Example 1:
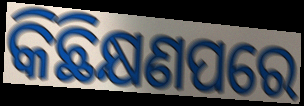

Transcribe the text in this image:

କିଛିକ୍ଷଣପରେ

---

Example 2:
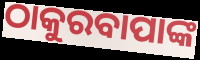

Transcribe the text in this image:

ଠାକୁରବାପାଙ୍କ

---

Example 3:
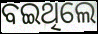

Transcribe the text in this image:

ବଇଥିଲେ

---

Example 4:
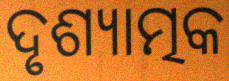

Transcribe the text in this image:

ଦୃଶ୍ୟାତ୍ମକ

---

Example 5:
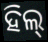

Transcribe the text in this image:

ହିଲ୍